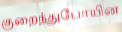
குறைந்துபோயின